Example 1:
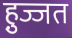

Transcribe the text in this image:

ह़ुज्जत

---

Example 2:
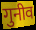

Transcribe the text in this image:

गुनीव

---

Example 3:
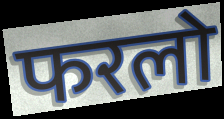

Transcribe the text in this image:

फरलो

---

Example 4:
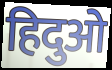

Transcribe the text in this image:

हिदुओ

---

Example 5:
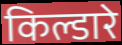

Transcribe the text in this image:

किल्डारे